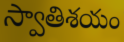
స్వాతిశయం